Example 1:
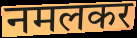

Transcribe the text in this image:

नमलकर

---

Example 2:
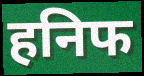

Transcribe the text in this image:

हनिफ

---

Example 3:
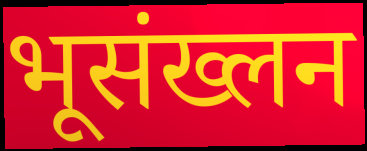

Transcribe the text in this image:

भूसंख्लन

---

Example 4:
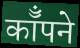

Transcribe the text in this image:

कॉँपने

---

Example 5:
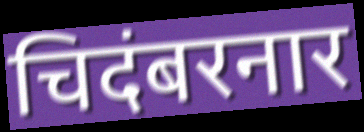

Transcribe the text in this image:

चिदंबरनार